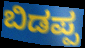
ಬಿಡಪ್ಪ